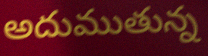
అదుముతున్న